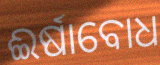
ଈର୍ଷାବୋଧ